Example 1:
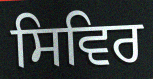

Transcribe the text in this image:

ਸਿਵਿਰ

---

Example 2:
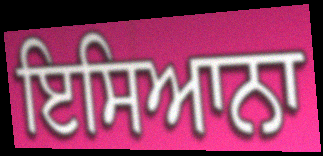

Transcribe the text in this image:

ਇਸਿਆਨਾ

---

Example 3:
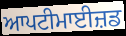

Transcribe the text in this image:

ਆਪਟੀਮਾਈਜ਼ਡ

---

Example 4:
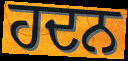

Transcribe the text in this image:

ਹਦਨ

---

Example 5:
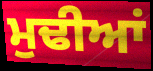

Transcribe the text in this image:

ਮੁਢੀਆਂ